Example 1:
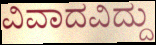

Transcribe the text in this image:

ವಿವಾದವಿದ್ದು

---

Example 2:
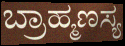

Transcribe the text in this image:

ಬ್ರಾಹ್ಮಣಸ್ಯ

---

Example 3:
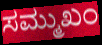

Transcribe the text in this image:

ಸಮ್ಮುಖಂ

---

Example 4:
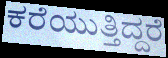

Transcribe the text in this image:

ಕರೆಯುತ್ತಿದ್ದರೆ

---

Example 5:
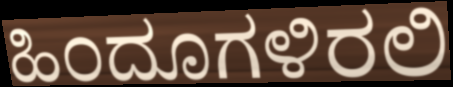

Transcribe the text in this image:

ಹಿಂದೂಗಳಿರಲಿ